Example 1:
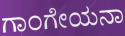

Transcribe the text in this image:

ಗಾಂಗೇಯನಾ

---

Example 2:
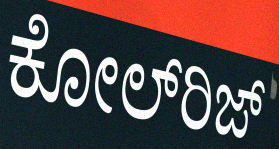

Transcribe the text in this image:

ಕೋಲ್‍ರಿಜ್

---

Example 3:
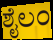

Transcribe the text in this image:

ಶೈಲಂ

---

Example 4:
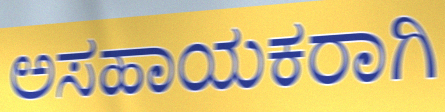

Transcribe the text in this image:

ಅಸಹಾಯಕರಾಗಿ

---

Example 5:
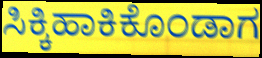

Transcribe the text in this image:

ಸಿಕ್ಕಿಹಾಕಿಕೊಂಡಾಗ